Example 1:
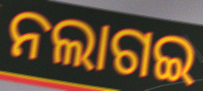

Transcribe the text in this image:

ନଲାଗଇ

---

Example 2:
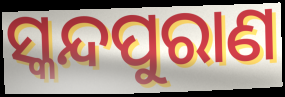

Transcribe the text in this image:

ସ୍କନ୍ଦପୁରାଣ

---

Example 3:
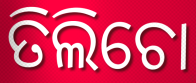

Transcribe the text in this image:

ତିଲିଚୋ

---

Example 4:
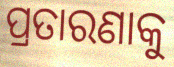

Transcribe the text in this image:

ପ୍ରତାରଣାକୁ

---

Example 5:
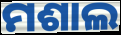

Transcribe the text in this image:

ମଶାଲ